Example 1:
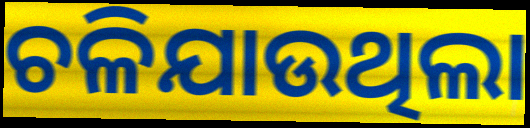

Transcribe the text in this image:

ଚଳିଯାଉଥିଲା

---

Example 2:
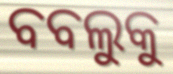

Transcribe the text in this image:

ବବଲୁକୁ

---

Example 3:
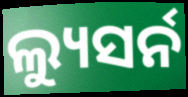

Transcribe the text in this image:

ଲ୍ୟୁସର୍ନ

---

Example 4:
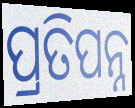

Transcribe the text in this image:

ପ୍ରତିପନ୍ନ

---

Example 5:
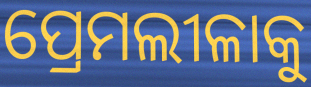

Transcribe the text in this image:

ପ୍ରେମଲୀଳାକୁ